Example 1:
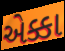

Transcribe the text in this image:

એક્કા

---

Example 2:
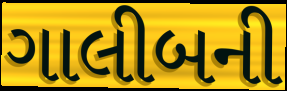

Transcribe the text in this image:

ગાલીબની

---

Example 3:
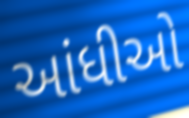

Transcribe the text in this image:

આંધીઓ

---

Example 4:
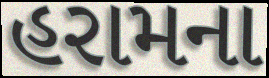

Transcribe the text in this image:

હરામના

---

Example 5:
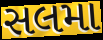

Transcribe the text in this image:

સલમા